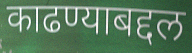
काढण्याबद्दल